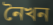
নৈখন